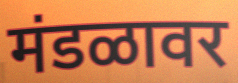
मंडळावर